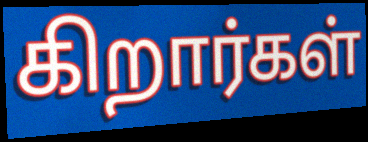
கிறார்கள்